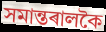
সমান্তৰালকৈ